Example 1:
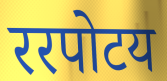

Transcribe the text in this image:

ररपोटय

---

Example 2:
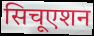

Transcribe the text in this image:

सिचूएशन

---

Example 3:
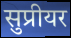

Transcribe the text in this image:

सुप्रीयर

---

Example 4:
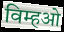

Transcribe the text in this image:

विम्हओ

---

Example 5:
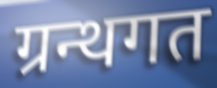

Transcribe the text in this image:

ग्रन्थगत